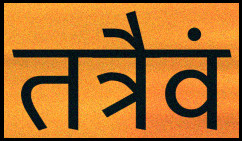
तत्रैवं